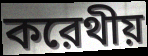
করেথীয়